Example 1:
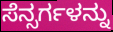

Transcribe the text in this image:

ಸೆನ್ಸರ್ಗಳನ್ನು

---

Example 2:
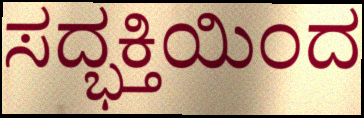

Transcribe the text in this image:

ಸದ್ಭಕ್ತಿಯಿಂದ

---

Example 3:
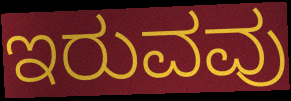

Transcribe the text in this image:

ಇರುವವು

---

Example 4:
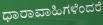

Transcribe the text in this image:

ಧಾರಾವಾಹಿಗಳೆಂದರೆ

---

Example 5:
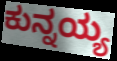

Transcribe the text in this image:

ಕುನ್ನಯ್ಯ